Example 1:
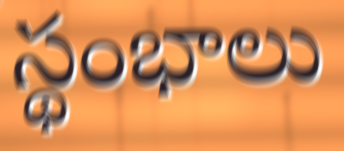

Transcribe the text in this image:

స్థంభాలు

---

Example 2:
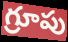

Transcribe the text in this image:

గ్రూపు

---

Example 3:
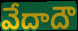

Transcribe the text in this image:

వేదాదౌ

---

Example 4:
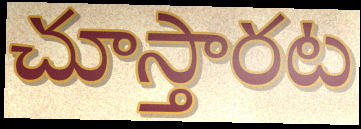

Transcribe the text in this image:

చూస్తారట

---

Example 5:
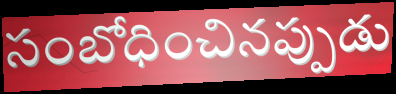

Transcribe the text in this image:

సంబోధించినప్పుడు